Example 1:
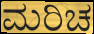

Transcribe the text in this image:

ಮರಿಚ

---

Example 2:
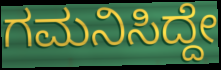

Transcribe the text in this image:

ಗಮನಿಸಿದ್ದೇ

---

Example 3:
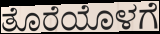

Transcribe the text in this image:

ತೊರೆಯೊಳಗೆ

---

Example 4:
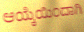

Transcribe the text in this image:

ಆಯ್ಕೆಯಿಂದಾಗಿ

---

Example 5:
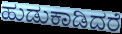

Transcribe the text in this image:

ಹುಡುಕಾಡಿದರೆ